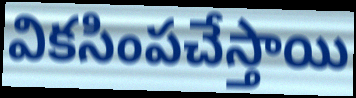
వికసింపచేస్తాయి